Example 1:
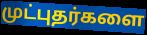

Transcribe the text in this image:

முட்புதர்களை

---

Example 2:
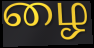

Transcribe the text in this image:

ழை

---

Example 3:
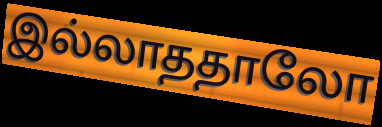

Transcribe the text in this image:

இல்லாததாலோ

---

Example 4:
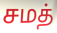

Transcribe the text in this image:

சமத்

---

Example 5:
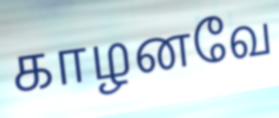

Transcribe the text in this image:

காழனவே